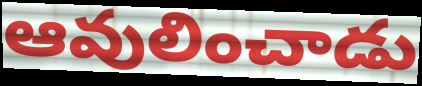
ఆవులించాడు